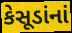
કેસૂડાંનાં